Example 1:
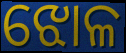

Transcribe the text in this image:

ଝୋଳ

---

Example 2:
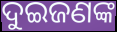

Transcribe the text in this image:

ଦୁଇଜଣଙ୍କ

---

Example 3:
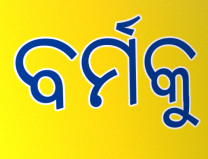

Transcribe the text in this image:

ବର୍ମକୁ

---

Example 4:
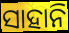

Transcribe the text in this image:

ସାହାନି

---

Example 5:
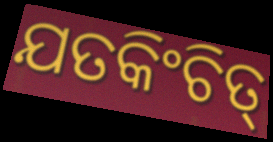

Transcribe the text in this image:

ଯତକିଂଚିତ୍